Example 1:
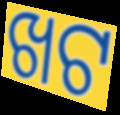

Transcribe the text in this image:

ଖଟ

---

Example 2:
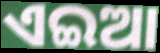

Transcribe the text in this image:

ଏଇଆ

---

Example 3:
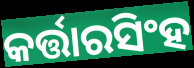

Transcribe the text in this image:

କର୍ତ୍ତାରସିଂହ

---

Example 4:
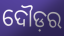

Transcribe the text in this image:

ଦୌଡ଼ର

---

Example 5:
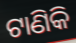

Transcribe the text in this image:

ଟାଣିକି